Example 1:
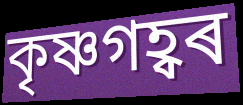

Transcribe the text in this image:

কৃষ্ণগহ্বৰ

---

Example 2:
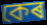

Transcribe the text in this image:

কেৰ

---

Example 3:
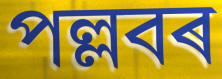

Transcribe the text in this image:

পল্লবৰ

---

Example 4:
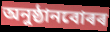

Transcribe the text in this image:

অনুষ্ঠানবোৰৰ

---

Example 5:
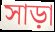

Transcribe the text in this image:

সাড়া